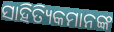
ସାହିତ୍ୟିକମାନଙ୍କ